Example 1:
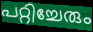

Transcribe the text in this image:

പറ്റിച്ചേരും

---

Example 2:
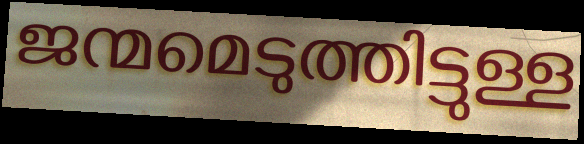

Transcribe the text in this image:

ജന്മമെടുത്തിട്ടുള്ള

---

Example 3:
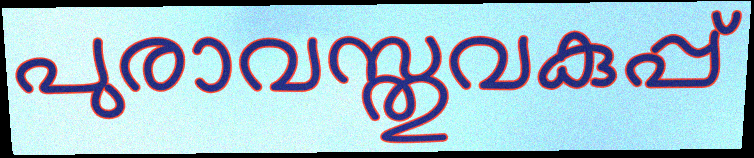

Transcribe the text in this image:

പുരാവസ്തുവകുപ്പ്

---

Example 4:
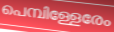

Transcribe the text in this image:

പെമ്പിള്ളേരേം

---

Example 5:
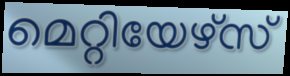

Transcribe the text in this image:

മെറ്റിയേഴ്സ്